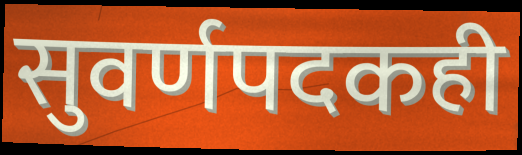
सुवर्णपदकही